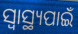
ସ୍ବାସ୍ଥ୍ୟପାଇଁ